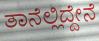
ತಾನೆಲ್ಲಿದ್ದೇನೆ